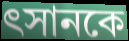
ৎসানকে